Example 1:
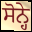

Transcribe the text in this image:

ਸੋਨ੍ਹੇ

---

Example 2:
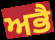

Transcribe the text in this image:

ਅਭੈ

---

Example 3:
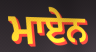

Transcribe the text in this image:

ਮਾਏਨ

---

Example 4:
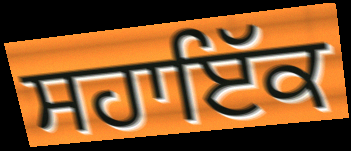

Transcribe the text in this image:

ਸਹਾਇੱਕ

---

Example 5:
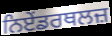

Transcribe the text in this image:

ਨਿਏਂਡਰਥਲਜ਼